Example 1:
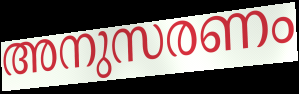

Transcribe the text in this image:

അനുസരണം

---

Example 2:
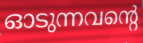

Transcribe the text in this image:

ഓടുന്നവന്റെ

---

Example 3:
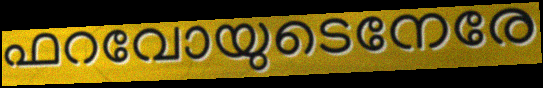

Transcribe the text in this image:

ഫറവോയുടെനേരേ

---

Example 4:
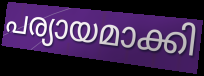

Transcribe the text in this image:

പര്യായമാക്കി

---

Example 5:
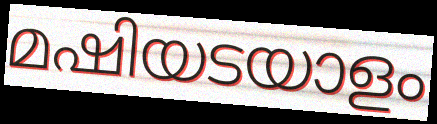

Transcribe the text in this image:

മഷിയടയാളം